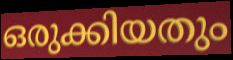
ഒരുക്കിയതും